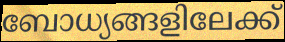
ബോധ്യങ്ങളിലേക്ക്